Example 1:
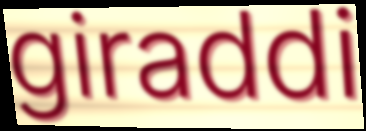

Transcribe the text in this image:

giraddi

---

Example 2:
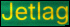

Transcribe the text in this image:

Jetlag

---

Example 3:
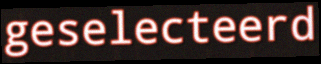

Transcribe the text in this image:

geselecteerd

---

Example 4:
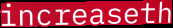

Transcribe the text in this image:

increaseth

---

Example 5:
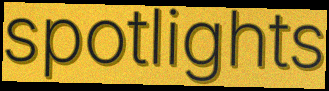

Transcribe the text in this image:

spotlights